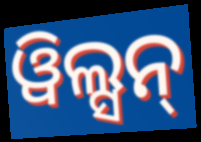
ୱିଲ୍ସନ୍